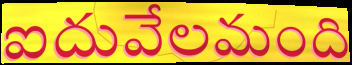
ఐదువేలమంది